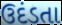
ઉદંડતા